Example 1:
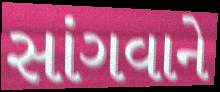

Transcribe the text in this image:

સાંગવાને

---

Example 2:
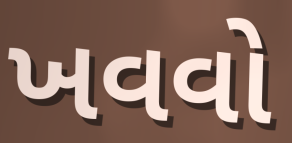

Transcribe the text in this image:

ખવવો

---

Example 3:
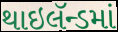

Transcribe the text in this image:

થાઇલૅન્ડમાં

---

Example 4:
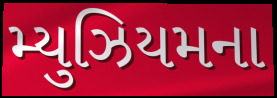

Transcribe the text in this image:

મ્યુઝિયમના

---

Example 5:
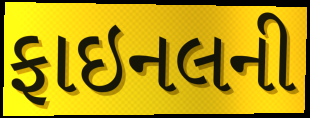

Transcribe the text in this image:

ફાઇનલની